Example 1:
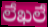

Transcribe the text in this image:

లేఖలే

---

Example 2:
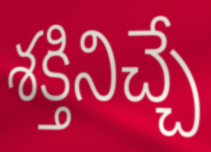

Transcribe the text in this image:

శక్తినిచ్చే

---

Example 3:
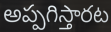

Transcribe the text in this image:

అప్పగిస్తారట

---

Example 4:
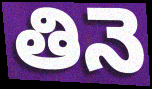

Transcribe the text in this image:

తినె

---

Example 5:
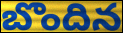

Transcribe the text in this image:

బొందిన